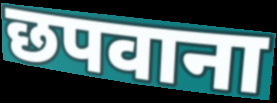
छपवाना